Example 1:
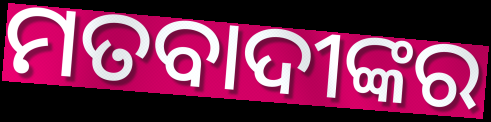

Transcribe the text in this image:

ମତବାଦୀଙ୍କର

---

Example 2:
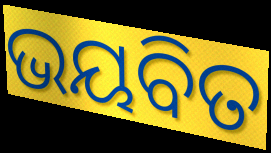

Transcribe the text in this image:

ଭୟବିତ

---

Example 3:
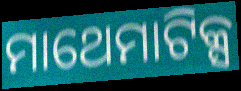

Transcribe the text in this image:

ମାଥେମାଟିକ୍ସ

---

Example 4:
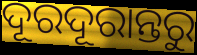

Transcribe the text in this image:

ଦୂରଦୂରାନ୍ତରୁ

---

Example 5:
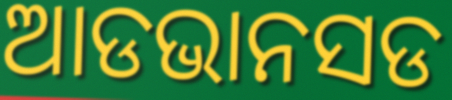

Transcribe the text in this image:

ଆଡଭାନସଡ